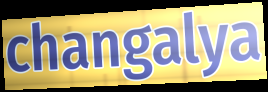
changalya